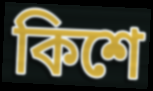
কিশে